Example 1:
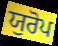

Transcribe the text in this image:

ਯੁਰੋਪ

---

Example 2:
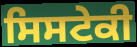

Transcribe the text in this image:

ਸਿਸਟੇਕੀ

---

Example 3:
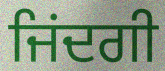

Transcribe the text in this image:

ਜਿਂਦਗੀ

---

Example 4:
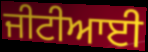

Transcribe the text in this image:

ਜੀਟੀਆਈ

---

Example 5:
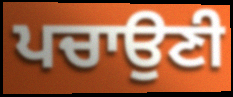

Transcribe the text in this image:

ਪਚਾਉਣੀ